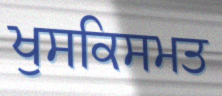
ਖੁਸਕਿਸਮਤ